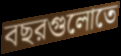
বছরগুলোতে